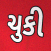
ચુકી